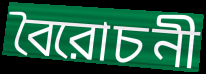
বৈরোচনী